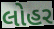
લોહર